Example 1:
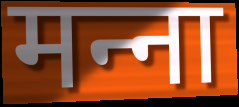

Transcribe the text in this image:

मन्ना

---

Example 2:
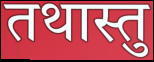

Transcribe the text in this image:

तथास्तु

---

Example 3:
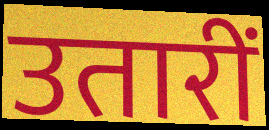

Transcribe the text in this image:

उतारीं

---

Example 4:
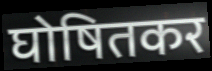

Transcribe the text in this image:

घोषितकर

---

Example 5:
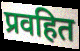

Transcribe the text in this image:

प्रवहित